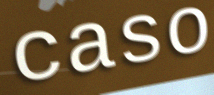
caso